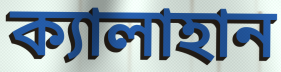
ক্যালাহান